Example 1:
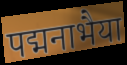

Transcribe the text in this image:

पद्मनाभैया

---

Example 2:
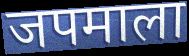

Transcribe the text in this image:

जपमाला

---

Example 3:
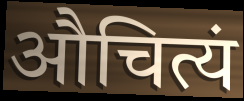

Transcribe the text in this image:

औचित्यं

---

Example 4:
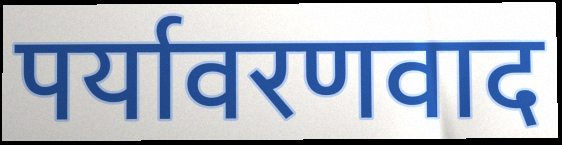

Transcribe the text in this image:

पर्यावरणवाद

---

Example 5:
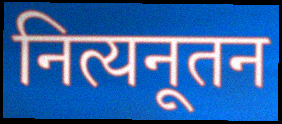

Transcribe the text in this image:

नित्यनूतन